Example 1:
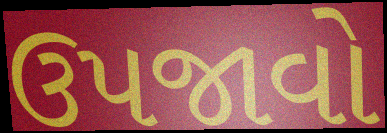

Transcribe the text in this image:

ઉપજાવો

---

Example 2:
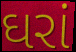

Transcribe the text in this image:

ઘરાં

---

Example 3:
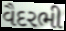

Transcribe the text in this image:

વૈદરભી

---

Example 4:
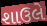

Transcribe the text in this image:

શાઉલે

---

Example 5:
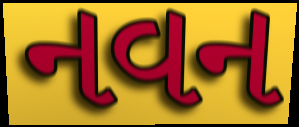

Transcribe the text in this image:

નવન